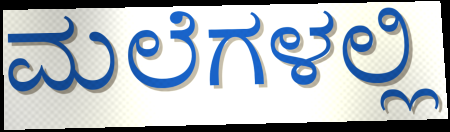
ಮಲೆಗಳಲ್ಲಿ